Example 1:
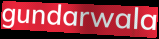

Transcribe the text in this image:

gundarwala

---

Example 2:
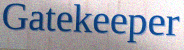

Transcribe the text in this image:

Gatekeeper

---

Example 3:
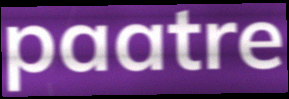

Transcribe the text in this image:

paatre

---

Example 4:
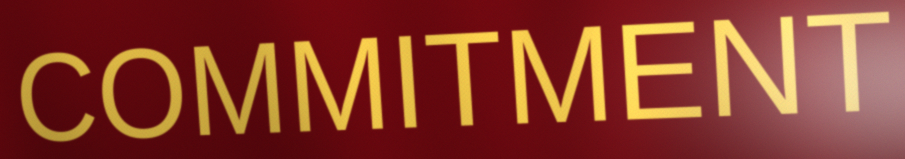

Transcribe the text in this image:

COMMITMENT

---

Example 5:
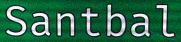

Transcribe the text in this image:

Santbal